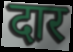
दार